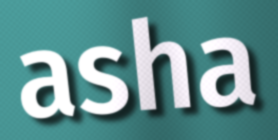
asha